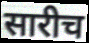
सारीच